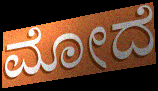
ಮೋದೆ